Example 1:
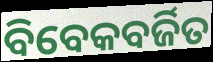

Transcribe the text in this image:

ବିବେକବର୍ଜିତ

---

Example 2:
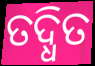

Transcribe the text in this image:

ତଦ୍ଧିତ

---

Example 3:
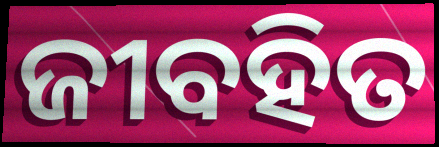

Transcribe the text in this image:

ଜୀବହିତ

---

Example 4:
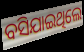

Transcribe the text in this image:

ବସିଯାଇଥିଲେ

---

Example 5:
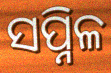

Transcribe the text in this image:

ସପ୍ନିଳ